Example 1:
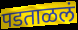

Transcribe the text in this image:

पडताळलं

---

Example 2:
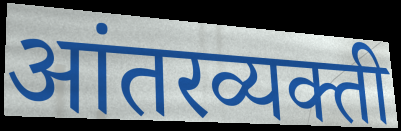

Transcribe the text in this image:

आंतरव्यक्ती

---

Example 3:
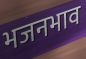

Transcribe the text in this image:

भजनभाव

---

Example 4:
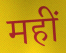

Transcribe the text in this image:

महीं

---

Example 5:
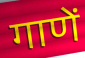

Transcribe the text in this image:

गाणें